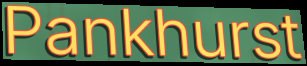
Pankhurst